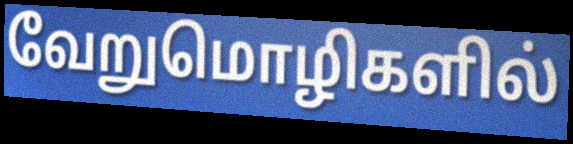
வேறுமொழிகளில்